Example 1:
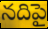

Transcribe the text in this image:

నదిపై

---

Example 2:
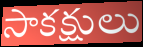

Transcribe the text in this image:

సాకక్షులు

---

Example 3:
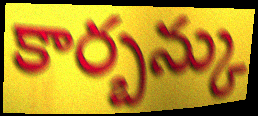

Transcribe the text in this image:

కార్బన్కు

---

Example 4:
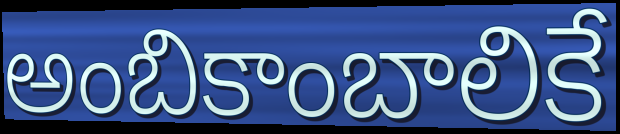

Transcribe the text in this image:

అంబికాంబాలికే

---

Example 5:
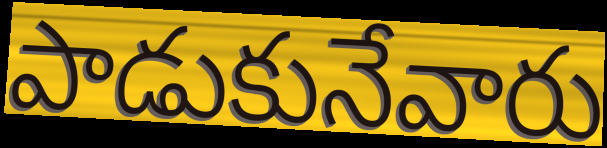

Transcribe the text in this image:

పాడుకునేవారు